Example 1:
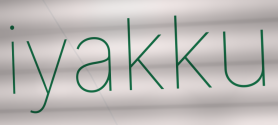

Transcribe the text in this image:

iyakku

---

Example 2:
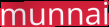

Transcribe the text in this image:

munnai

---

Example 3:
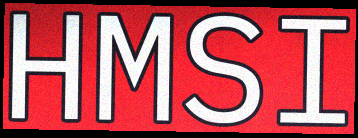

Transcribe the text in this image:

HMSI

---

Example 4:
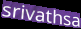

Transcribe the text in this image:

srivathsa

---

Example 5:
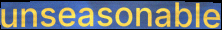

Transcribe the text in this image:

unseasonable